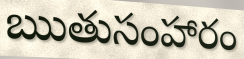
ఋతుసంహారం